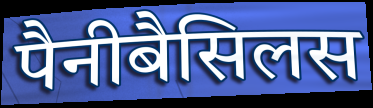
पैनीबैसिलस